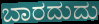
ಬಾರದುದು